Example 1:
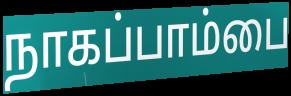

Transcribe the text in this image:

நாகப்பாம்பை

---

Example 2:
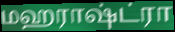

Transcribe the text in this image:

மஹராஷ்ட்ரா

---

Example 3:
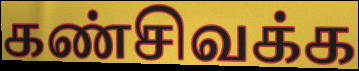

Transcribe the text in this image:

கண்சிவக்க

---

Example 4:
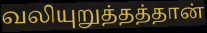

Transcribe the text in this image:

வலியுறுத்தத்தான்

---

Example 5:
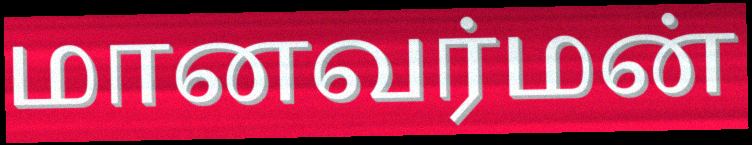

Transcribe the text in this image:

மானவர்மன்